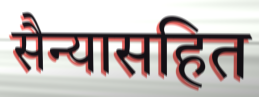
सैन्यासहित